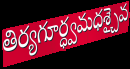
తిర్యగూర్ధ్వమధశ్చైవ